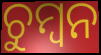
ଚୁମ୍ବନ